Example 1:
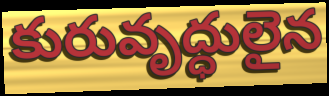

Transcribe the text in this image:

కురువృద్ధులైన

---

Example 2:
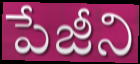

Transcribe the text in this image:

పేజీని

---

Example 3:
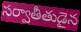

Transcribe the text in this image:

సర్వాతీతుడైన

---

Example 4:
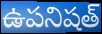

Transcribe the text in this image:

ఉపనిషత్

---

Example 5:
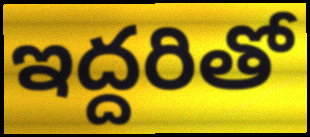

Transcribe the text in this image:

ఇద్దరితో